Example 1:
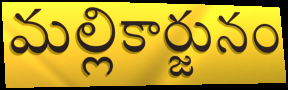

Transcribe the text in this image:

మల్లికార్జునం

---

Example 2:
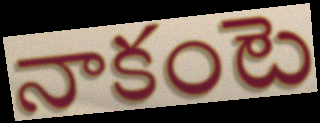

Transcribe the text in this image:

నాకంటె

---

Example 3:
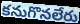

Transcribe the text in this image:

కనుగొనలేరు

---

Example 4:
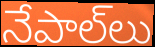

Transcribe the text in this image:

నేపాల్‌లు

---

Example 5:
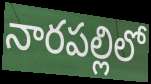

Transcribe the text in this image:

నారపల్లిలో